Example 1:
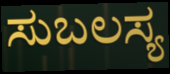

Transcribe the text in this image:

ಸುಬಲಸ್ಯ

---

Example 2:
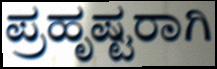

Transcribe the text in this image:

ಪ್ರಹೃಷ್ಟರಾಗಿ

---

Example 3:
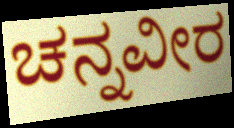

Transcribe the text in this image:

ಚನ್ನವೀರ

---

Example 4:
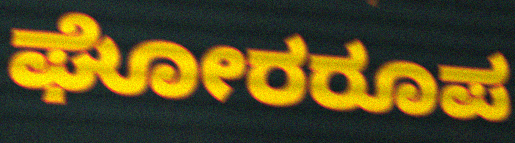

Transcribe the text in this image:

ಘೋರರೂಪ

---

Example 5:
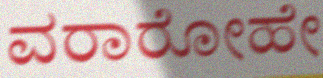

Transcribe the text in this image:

ವರಾರೋಹೇ